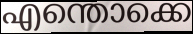
എന്തൊക്കെ